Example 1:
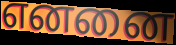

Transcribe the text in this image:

எனனை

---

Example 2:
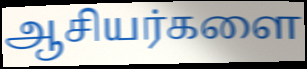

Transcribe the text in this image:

ஆசியர்களை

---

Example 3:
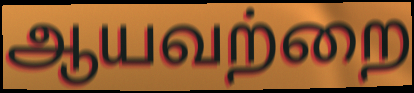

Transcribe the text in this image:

ஆயவற்றை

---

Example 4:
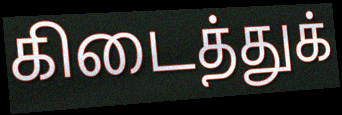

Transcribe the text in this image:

கிடைத்துக்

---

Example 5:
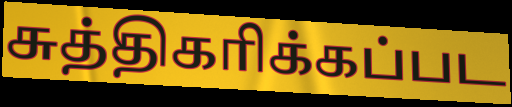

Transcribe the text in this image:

சுத்திகரிக்கப்பட